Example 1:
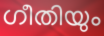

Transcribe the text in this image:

ഗീതിയും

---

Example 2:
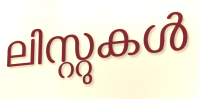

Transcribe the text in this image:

ലിസ്റ്റുകൾ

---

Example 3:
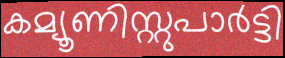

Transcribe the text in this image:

കമ്യൂണിസ്റ്റുപാർട്ടി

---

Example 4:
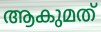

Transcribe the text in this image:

ആകുമത്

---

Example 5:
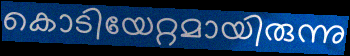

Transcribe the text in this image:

കൊടിയേറ്റമായിരുന്നു